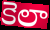
కెలా